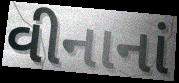
વીનાનાં